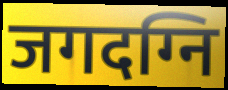
जगदग्नि